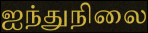
ஐந்துநிலை